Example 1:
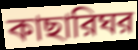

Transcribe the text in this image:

কাছারিঘর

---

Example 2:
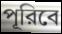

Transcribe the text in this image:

পূরিবে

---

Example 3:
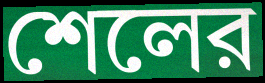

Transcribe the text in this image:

শেলের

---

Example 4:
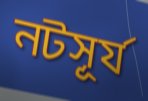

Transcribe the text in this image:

নটসূর্য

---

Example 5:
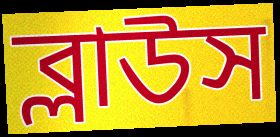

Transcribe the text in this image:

ব্লাউস